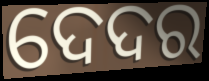
ଦେଦର